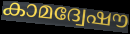
കാമദ്വേഷൗ